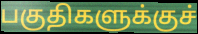
பகுதிகளுக்குச்